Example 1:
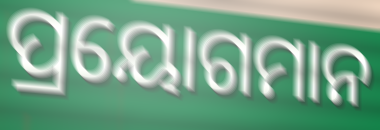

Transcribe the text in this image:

ପ୍ରୟୋଗମାନ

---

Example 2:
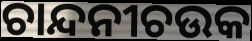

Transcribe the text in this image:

ଚାନ୍ଦନୀଚଉକ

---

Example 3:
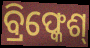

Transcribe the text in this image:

ବ୍ରିଫ୍କେଶ୍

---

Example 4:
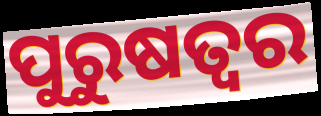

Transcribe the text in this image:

ପୁରୁଷତ୍ଵର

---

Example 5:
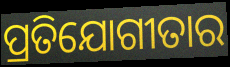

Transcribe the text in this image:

ପ୍ରତିଯୋଗୀତାର